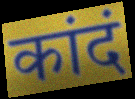
कांदं